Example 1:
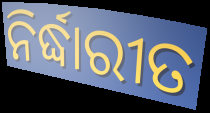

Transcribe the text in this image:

ନିର୍ଦ୍ଧାରୀତ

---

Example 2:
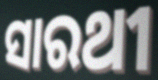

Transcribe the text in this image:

ସାରଥୀ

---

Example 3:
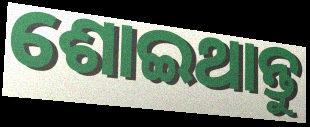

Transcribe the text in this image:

ଶୋଇଥାନ୍ତୁ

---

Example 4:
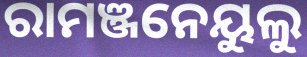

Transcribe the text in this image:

ରାମଞ୍ଜନେୟୁଲୁ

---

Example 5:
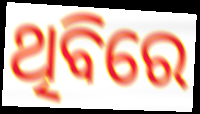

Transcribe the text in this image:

ଥିବିରେ